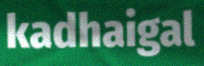
kadhaigal